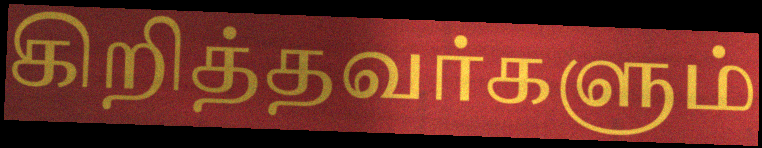
கிறித்தவர்களும்